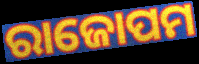
ରାଜୋପମ